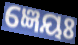
ଜ୍ଞେୟଃ